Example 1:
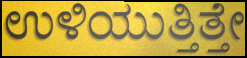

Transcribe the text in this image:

ಉಳಿಯುತ್ತಿತ್ತೇ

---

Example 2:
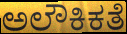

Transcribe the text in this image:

ಅಲೌಕಿಕತೆ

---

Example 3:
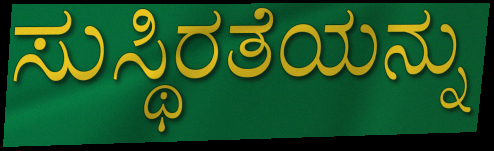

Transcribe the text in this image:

ಸುಸ್ಥಿರತೆಯನ್ನು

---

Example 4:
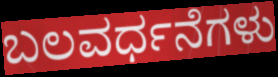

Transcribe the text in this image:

ಬಲವರ್ಧನೆಗಳು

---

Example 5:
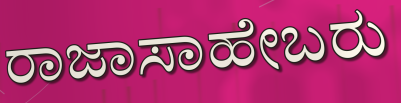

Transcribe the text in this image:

ರಾಜಾಸಾಹೇಬರು